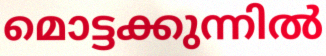
മൊട്ടക്കുന്നിൽ